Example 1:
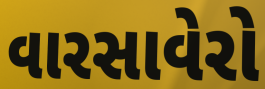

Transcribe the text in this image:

વારસાવેરો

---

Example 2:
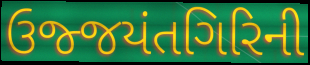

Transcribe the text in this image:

ઉજ્જયંતગિરિની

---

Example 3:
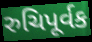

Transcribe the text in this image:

રુચિપૂર્વક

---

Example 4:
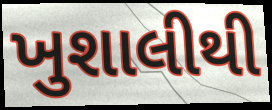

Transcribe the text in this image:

ખુશાલીથી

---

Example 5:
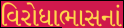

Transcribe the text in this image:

વિરોધાભાસનાં